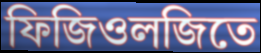
ফিজিওলজিতে